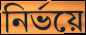
নির্ভয়ে